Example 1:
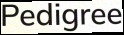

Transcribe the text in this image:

Pedigree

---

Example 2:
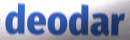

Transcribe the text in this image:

deodar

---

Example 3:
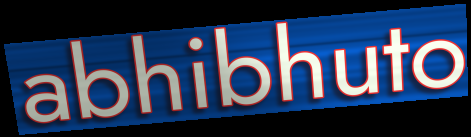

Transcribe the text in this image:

abhibhuto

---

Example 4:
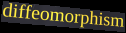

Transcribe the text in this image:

diffeomorphism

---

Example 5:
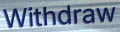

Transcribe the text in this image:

Withdraw